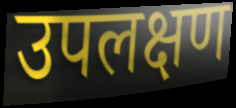
उपलक्षण